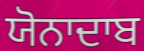
ਯੋਨਾਦਾਬ